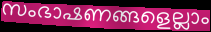
സംഭാഷണങ്ങളെല്ലാം